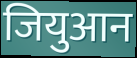
जियुआन